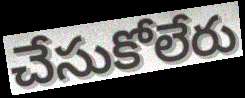
చేసుకోలేరు